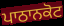
ਪਾਠਾਨਕੋਟ